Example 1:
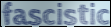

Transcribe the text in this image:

fascistic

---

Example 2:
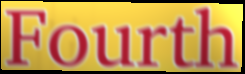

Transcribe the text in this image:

Fourth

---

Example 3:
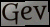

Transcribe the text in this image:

Gev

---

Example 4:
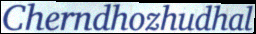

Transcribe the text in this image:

Cherndhozhudhal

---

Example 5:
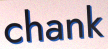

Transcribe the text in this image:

chank